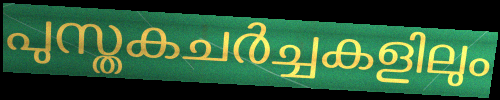
പുസ്തകചർച്ചകളിലും